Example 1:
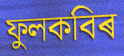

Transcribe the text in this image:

ফুলকবিৰ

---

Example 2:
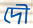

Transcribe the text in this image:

দৌ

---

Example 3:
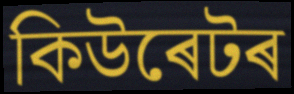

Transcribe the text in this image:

কিউৰেটৰ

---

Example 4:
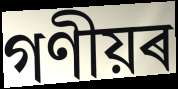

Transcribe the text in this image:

গণীয়ৰ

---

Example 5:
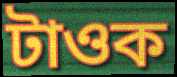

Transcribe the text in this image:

টাওক